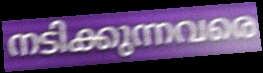
നടിക്കുന്നവരെ